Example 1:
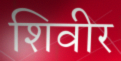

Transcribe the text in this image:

शिवीर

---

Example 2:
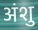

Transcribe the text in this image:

अंशु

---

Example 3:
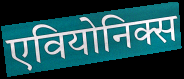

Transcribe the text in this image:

एवियोनिक्स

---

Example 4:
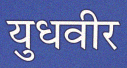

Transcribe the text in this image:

युधवीर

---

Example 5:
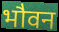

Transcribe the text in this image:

भौवन